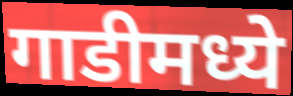
गाडीमध्ये